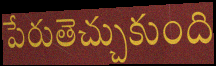
పేరుతెచ్చుకుంది